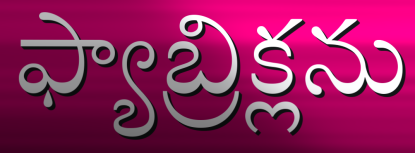
ఫ్యాబ్రిక్లను